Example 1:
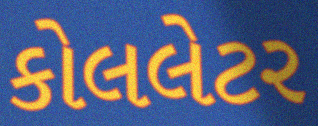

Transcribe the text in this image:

કોલલેટર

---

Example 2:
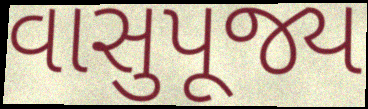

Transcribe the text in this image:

વાસુપૂજ્ય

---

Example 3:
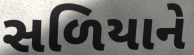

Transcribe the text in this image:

સળિયાને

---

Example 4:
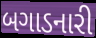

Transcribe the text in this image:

બગાડનારી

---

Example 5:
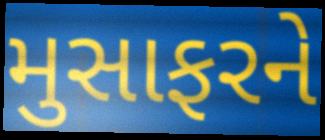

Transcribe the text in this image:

મુસાફરને